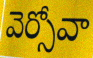
వెర్సోవా